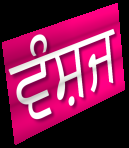
ਵੰਸ਼ਜ